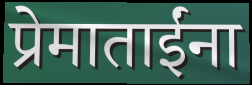
प्रेमाताईंना